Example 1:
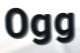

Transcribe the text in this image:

Ogg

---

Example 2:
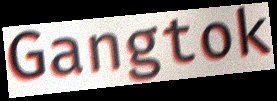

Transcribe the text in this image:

Gangtok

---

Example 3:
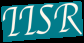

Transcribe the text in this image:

IISR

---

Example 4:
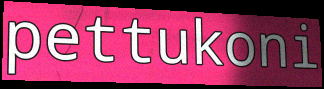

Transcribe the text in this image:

pettukoni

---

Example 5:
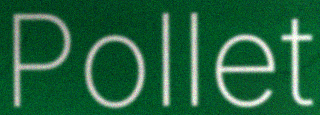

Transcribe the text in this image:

Pollet